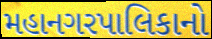
મહાનગરપાલિકાનો